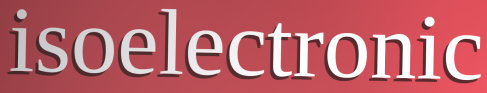
isoelectronic